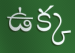
ఉక్క